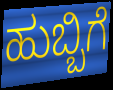
ಹುಬ್ಬಿಗೆ